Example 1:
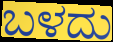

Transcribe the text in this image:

ಬಳದು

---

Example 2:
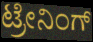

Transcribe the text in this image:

ಟ್ರೇನಿಂಗ್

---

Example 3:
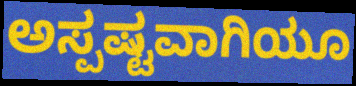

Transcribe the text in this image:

ಅಸ್ಪಷ್ಟವಾಗಿಯೂ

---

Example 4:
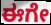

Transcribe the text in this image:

ಈಗೇ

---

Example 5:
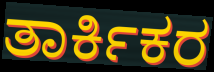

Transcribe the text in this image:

ತಾರ್ಕಿಕರ